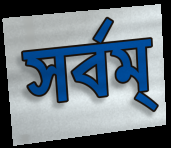
সর্বম্